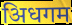
अिधगम